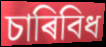
চাৰিবিধ